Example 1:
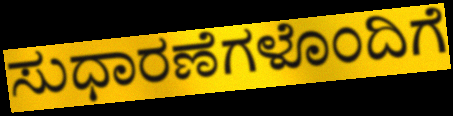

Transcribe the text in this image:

ಸುಧಾರಣೆಗಳೊಂದಿಗೆ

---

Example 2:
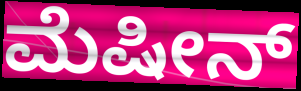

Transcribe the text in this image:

ಮೆಷೀನ್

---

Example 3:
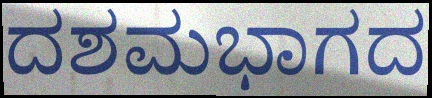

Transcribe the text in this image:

ದಶಮಭಾಗದ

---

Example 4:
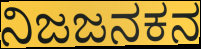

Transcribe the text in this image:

ನಿಜಜನಕನ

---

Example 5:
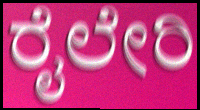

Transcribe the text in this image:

ರೈಲೇರಿ